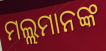
ମଲ୍ଲମାନଙ୍କ